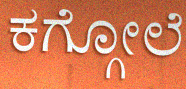
ಕಗ್ಗೋಲೆ